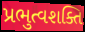
પ્રભુત્વશક્તિ